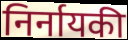
निर्नायकी